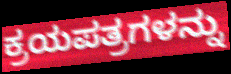
ಕ್ರಯಪತ್ರಗಳನ್ನು